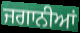
ਜਗਾਨੀਆਂ